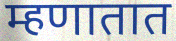
म्हणातात